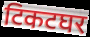
टिकटघर